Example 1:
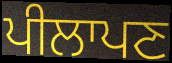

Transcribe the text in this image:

ਪੀਲਾਪਣ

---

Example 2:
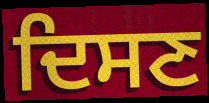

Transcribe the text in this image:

ਦਿਸਣ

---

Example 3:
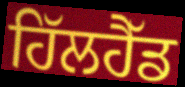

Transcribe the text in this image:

ਹਿੱਲਹੈੱਡ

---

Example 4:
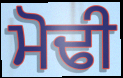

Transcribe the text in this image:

ਮੋਢੀ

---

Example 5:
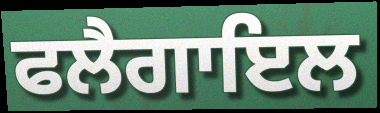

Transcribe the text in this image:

ਫਲੈਗਾਇਲ